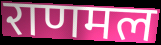
राणमल